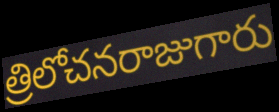
త్రిలోచనరాజుగారు